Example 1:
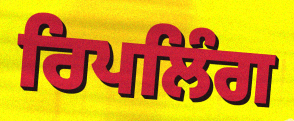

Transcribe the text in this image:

ਰਿਪਲਿੰਗ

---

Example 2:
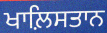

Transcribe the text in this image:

ਖਾਲ਼ਿਸਤਾਨ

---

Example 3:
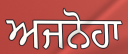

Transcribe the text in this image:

ਅਜਨੋਹਾ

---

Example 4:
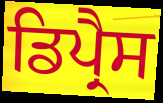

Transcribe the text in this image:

ਡਿਪ੍ਰੈਸ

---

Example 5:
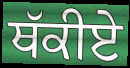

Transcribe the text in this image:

ਥੱਕੀਏ